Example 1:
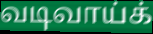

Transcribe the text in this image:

வடிவாய்க்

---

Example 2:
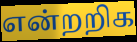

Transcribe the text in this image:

என்றறிக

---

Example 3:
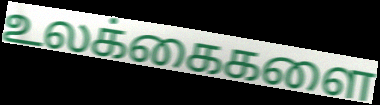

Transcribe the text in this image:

உலக்கைகளை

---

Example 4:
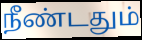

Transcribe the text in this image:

நீண்டதும்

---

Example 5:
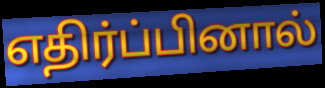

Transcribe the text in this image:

எதிர்ப்பினால்